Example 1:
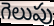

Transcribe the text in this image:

గెలుపు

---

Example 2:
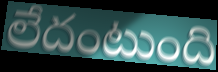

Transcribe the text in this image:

లేదంటుంది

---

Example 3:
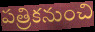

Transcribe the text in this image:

పత్రికనుంచి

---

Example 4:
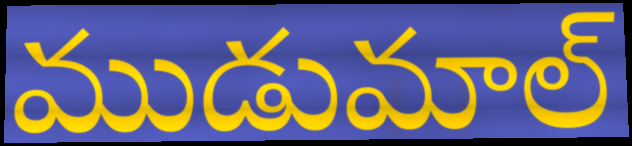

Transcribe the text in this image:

ముడుమాల్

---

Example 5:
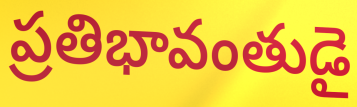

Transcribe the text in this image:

ప్రతిభావంతుడై